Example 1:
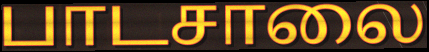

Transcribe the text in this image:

பாடசாலை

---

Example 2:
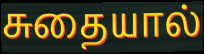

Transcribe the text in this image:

சுதையால்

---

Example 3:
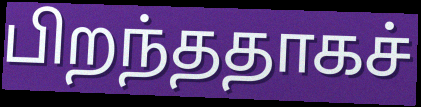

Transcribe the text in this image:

பிறந்ததாகச்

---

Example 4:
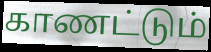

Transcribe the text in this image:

காணட்டும்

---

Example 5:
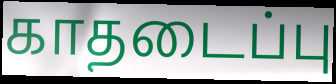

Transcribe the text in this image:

காதடைப்பு